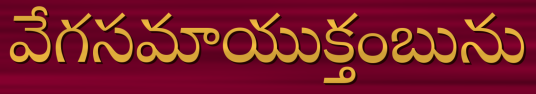
వేగసమాయుక్తంబును